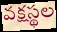
వక్షస్థల